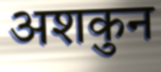
अशकुन